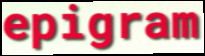
epigram